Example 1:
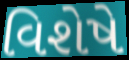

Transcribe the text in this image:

વિશેષે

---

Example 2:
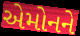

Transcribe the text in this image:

એમોનને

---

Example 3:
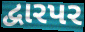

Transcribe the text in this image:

દ્વારપર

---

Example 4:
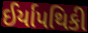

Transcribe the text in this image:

ઈર્યાપથિકી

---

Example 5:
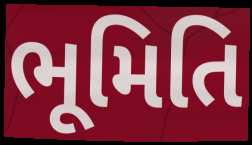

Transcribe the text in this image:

ભૂમિતિ